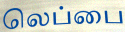
லெப்பை